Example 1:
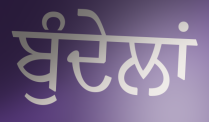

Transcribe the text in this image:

ਬੁੰਦੇਲਾਂ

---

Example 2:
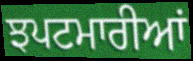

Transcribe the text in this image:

ਝਪਟਮਾਰੀਆਂ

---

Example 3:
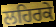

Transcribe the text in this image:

ਲਹਿਰਕੇ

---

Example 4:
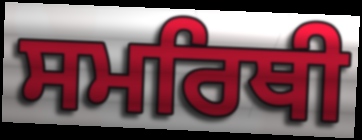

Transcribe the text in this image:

ਸਮਰਿਥੀ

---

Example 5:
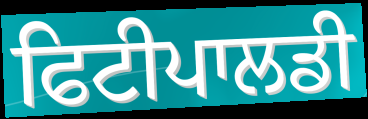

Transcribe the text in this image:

ਫਿਟੀਪਾਲਡੀ